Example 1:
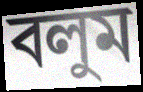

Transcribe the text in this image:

বলুম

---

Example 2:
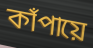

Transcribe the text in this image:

কাঁপায়ে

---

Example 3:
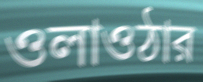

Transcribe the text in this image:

ওলাওঠার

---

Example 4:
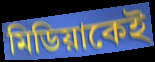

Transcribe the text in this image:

মিডিয়াকেই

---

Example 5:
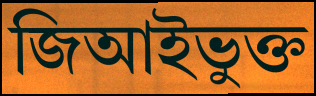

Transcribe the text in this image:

জিআইভুক্ত